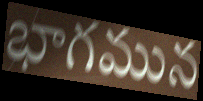
భాగమున